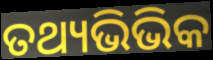
ତଥ୍ୟଭିଭିକ